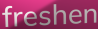
freshen